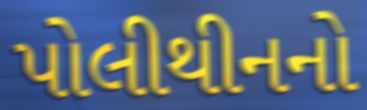
પોલીથીનનો